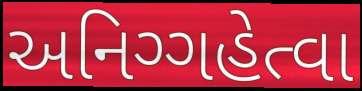
અનિગ્ગહેત્વા